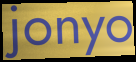
jonyo